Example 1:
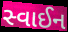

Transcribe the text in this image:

સ્વાઈન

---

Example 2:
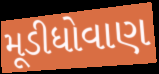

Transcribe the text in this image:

મૂડીધોવાણ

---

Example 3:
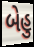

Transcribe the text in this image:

બેહુ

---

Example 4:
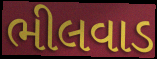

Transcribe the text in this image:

ભીલવાડ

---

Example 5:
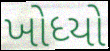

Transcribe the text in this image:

ખોધ્યો